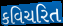
કવિચરિત